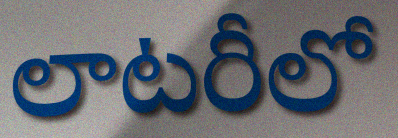
లాటరీలో